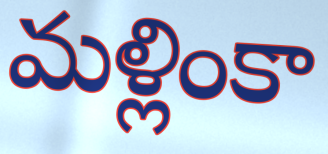
మళ్లింకా